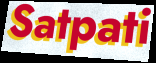
Satpati